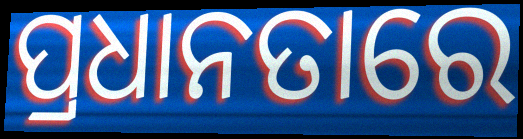
ପ୍ରଧାନତାରେ